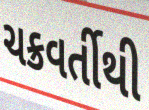
ચક્રવર્તીથી